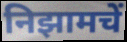
निझामचें